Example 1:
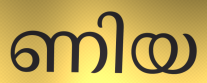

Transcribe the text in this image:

ണിയ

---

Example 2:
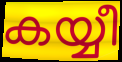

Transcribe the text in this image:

കയ്യീ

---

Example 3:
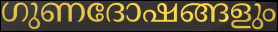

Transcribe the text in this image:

ഗുണദോഷങ്ങളും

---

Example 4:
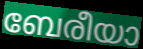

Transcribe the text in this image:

ബേരീയാ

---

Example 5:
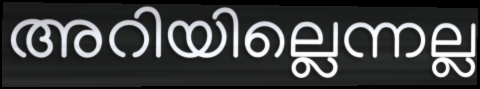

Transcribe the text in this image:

അറിയില്ലെന്നല്ല